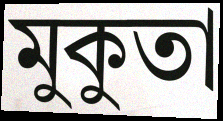
মুকুতা